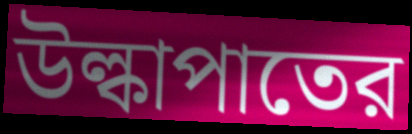
উল্কাপাতের